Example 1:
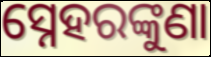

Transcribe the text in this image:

ସ୍ନେହରଙ୍କୁଣା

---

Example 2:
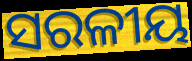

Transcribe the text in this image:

ସରଳୀୟ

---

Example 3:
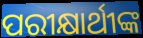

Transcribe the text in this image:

ପରୀକ୍ଷାର୍ଥୀଙ୍କ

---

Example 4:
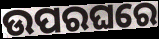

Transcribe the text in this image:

ଉପରଘରେ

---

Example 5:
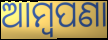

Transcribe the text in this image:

ଆମ୍ବପଣା